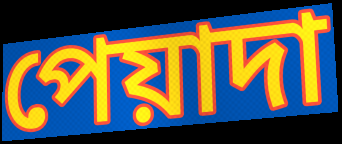
পেয়াদা